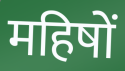
महिषों